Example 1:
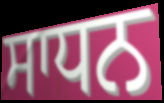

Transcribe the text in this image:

ਸਾਧਨ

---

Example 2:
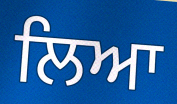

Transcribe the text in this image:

ਲਿਆ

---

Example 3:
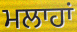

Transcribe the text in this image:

ਮਲਾਹਾਂ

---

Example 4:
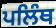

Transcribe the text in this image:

ਪਲਿੰਥ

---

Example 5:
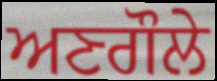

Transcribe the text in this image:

ਅਣਗੌਲੇ